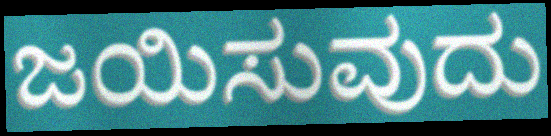
ಜಯಿಸುವುದು